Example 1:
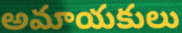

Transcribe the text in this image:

అమాయకులు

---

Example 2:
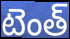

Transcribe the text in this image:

టెంత్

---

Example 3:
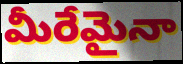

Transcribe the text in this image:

మీరేమైనా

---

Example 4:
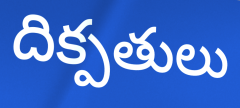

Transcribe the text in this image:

దిక్పతులు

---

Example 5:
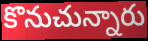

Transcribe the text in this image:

కొనుచున్నారు